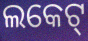
ଲକେଟ୍